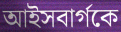
আইসবার্গকে